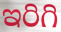
ఇరిగి